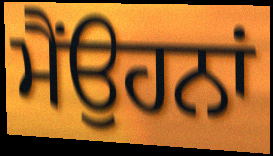
ਮੈਂਉਹਨਾਂ